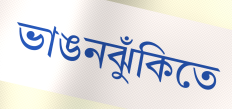
ভাঙনঝুঁকিতে